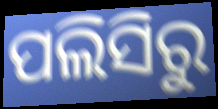
ପଲିସିରୁ